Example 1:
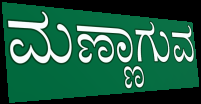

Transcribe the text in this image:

ಮಣ್ಣಾಗುವ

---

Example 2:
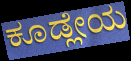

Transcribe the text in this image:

ಕೂಡ್ಲೇಯ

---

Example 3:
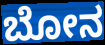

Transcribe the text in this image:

ಬೋನ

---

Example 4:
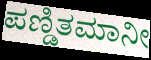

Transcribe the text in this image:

ಪಣ್ಡಿತಮಾನೀ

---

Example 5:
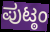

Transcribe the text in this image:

ಪುಟ್ಠಂ